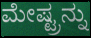
ಮೇಷ್ಟ್ರನ್ನು